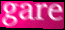
gare